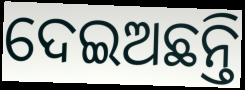
ଦେଇଅଛନ୍ତି